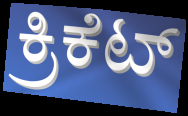
ಕ್ರಿಕೆಟ್